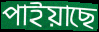
পাইয়াছে